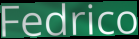
Fedrico